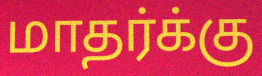
மாதர்க்கு